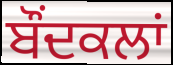
ਬੌਂਦਕਲਾਂ